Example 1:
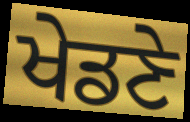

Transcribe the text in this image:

ਖੇਡਣੇ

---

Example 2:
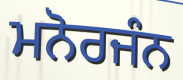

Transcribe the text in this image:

ਮਨੋਰਜੰਨ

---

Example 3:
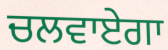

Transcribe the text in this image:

ਚਲਵਾਏਗਾ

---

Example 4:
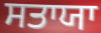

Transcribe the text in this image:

ਸਤਾਯਾ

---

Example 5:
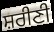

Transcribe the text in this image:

ਸ਼ਰੀਣੀ